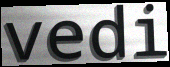
vedi